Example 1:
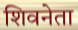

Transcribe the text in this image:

शिवनेता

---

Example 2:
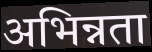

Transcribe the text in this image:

अभिन्नता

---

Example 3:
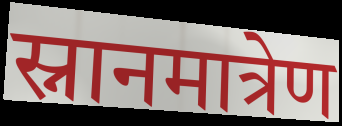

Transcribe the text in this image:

स्नानमात्रेण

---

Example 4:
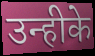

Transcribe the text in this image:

उन्हीके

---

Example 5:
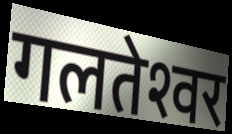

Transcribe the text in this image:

गलतेश्वर